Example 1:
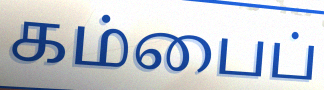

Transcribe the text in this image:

கம்பைப்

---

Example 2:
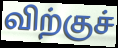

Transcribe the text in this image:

விற்குச்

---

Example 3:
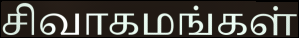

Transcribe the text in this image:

சிவாகமங்கள்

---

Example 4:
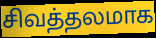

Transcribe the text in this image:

சிவத்தலமாக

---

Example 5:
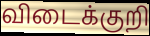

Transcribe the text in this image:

விடைக்குறி